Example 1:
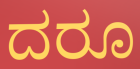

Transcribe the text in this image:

ದರೂ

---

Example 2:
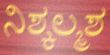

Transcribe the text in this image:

ನಿಶ್ಕಲ್ಮಶ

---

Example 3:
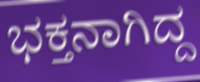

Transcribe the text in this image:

ಭಕ್ತನಾಗಿದ್ದ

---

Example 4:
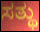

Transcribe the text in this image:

ಸತ್ಥು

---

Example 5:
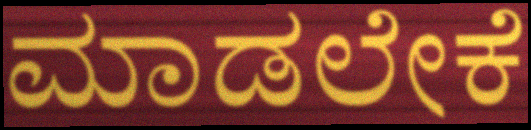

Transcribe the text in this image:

ಮಾಡಲೇಕೆ